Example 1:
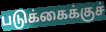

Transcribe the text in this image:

படுக்கைக்குச்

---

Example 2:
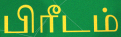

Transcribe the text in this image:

பிரீடம்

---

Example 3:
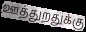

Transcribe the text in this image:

ஊத்துறதுக்கு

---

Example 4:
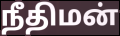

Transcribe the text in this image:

நீதிமன்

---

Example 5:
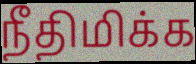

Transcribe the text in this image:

நீதிமிக்க